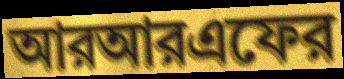
আরআরএফের